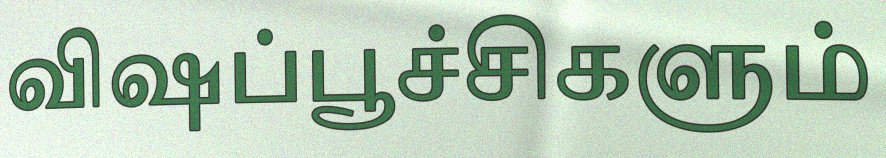
விஷப்பூச்சிகளும்